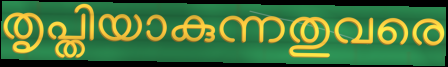
തൃപ്തിയാകുന്നതുവരെ